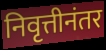
निवृत्तीनंतर